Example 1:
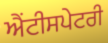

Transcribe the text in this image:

ਐਂਟੀਸਪੇਟਰੀ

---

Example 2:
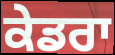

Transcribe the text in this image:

ਕੇਡਰਾ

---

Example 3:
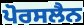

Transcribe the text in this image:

ਪੋਰਸਲੈਨ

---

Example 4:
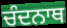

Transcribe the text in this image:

ਚੰਦਨਾਥ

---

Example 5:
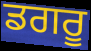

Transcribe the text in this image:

ਡਗਰੂ